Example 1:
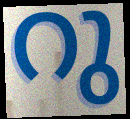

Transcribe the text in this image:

റു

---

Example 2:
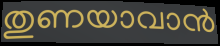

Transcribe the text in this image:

തുണയാവാൻ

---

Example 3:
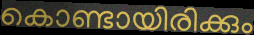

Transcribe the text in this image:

കൊണ്ടായിരിക്കും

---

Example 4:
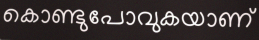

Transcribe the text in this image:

കൊണ്ടുപോവുകയാണ്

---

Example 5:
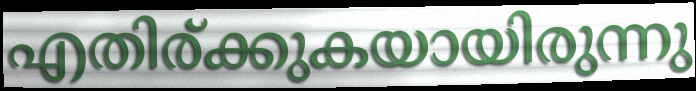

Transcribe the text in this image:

എതിര്ക്കുകയായിരുന്നു